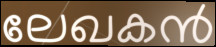
ലേഖകൻ